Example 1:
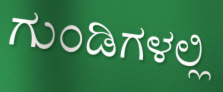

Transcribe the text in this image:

ಗುಂಡಿಗಳಲ್ಲಿ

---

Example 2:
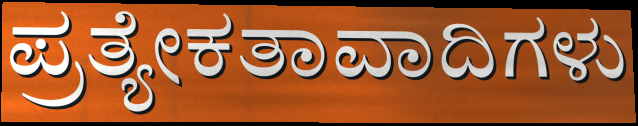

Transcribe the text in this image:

ಪ್ರತ್ಯೇಕತಾವಾದಿಗಳು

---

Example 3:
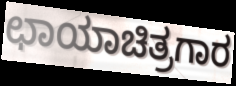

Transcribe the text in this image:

ಛಾಯಾಚಿತ್ರಗಾರ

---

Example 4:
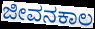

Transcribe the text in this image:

ಜೀವನಕಾಲ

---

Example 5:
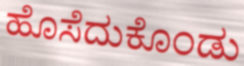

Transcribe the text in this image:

ಹೊಸೆದುಕೊಂಡು